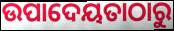
ଉପାଦେୟତାଠାରୁ